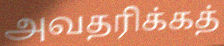
அவதரிக்கத்